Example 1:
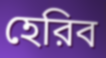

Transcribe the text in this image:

হেরিব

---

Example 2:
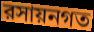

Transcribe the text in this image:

রসায়নগত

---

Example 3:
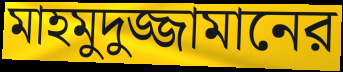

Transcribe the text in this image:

মাহমুদুজ্জামানের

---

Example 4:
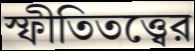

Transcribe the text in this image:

স্ফীতিতত্ত্বের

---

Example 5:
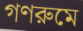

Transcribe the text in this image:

গণরুমে